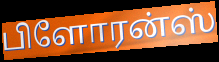
பிளோரன்ஸ்